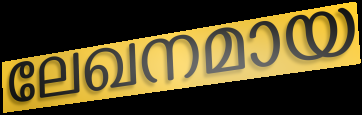
ലേഖനമായ